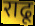
राढू